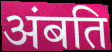
अंबति